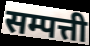
सम्पत्ती